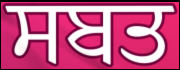
ਸਬਤ